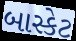
બાસ્કેટ